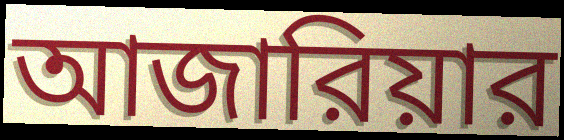
আজারিয়ার